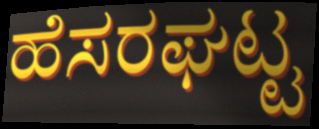
ಹೆಸರಘಟ್ಟ